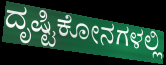
ದೃಷ್ಟಿಕೋನಗಳಲ್ಲಿ